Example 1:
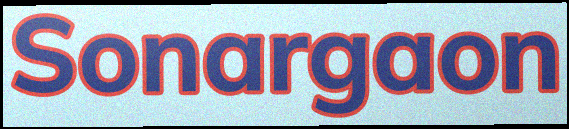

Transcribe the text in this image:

Sonargaon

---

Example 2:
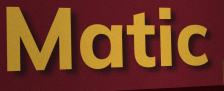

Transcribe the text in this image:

Matic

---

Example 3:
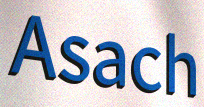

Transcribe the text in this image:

Asach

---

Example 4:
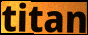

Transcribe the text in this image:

titan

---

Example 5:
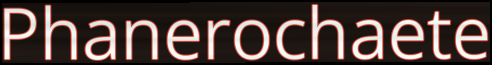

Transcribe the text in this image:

Phanerochaete